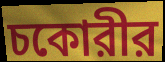
চকোরীর